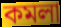
কমলা